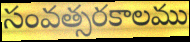
సంవత్సరకాలము